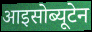
आइसोब्यूटेन